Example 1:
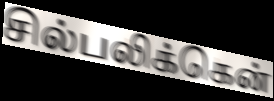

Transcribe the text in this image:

சில்பலிக்கென்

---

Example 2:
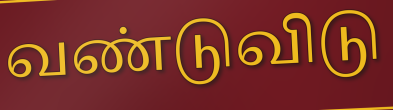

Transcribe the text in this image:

வண்டுவிடு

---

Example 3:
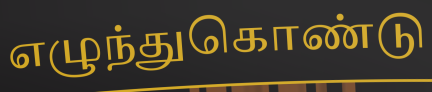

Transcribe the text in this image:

எழுந்துகொண்டு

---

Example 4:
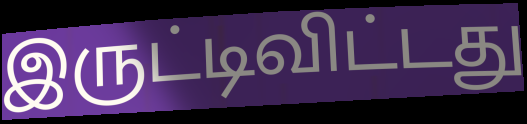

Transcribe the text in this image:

இருட்டிவிட்டது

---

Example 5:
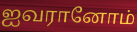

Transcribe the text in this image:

ஐவரானோம்